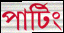
পার্টিং